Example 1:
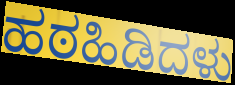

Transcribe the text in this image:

ಹಠಹಿಡಿದಳು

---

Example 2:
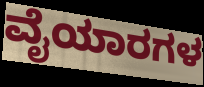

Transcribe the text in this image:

ವೈಯಾರಗಳ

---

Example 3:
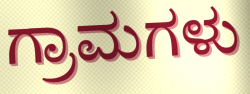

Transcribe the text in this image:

ಗ್ರಾಮಗಳು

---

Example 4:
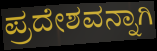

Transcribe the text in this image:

ಪ್ರದೇಶವನ್ನಾಗಿ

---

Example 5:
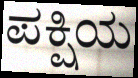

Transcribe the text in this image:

ಪಕ್ಷಿಯ